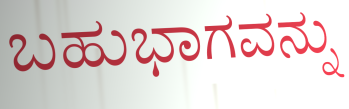
ಬಹುಭಾಗವನ್ನು